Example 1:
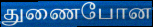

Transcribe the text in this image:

துணைபோன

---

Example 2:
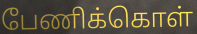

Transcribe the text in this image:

பேணிக்கொள்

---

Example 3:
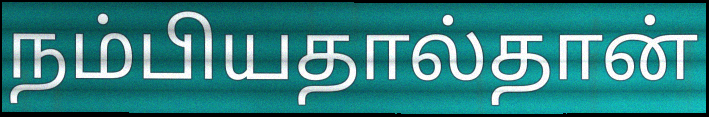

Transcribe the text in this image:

நம்பியதால்தான்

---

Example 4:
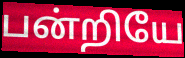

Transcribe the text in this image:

பன்றியே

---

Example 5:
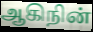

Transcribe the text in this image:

ஆகிநின்